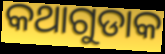
କଥାଗୁଡାକ